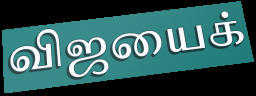
விஜயைக்